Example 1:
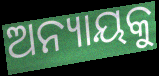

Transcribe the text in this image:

ଅନ୍ୟାୟକୁ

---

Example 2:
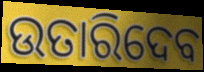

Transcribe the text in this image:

ଉତାରିଦେବ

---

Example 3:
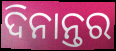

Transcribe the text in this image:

ଦିନାନ୍ତର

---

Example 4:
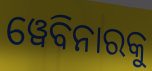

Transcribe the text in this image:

ୱେବିନାରକୁ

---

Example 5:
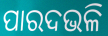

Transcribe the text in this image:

ପାରଦଭଳି